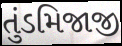
તુંડમિજાજી